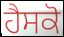
ਹੈਸਕੋ